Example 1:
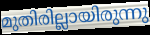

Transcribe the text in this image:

മുതിരില്ലായിരുന്നു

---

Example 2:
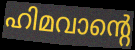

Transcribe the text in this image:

ഹിമവാന്റെ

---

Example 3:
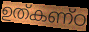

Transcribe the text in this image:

ഉത്കണ്ഠ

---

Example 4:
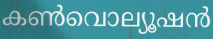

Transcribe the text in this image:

കൺവൊല്യൂഷൻ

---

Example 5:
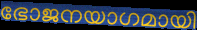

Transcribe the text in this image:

ഭോജനയാഗമായി